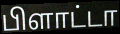
பிளாட்டா